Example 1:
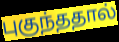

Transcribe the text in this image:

புகுந்ததால்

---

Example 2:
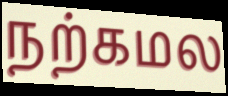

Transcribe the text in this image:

நற்கமல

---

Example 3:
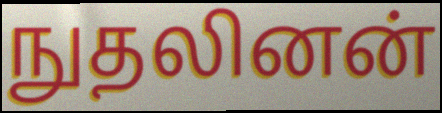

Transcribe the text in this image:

நுதலினன்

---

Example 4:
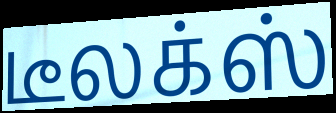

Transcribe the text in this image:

டீலக்ஸ்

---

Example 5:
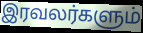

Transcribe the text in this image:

இரவலர்களும்